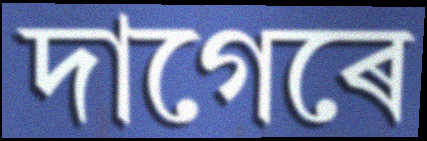
দাগেৰে